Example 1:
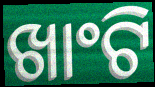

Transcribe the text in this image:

ଖାଂଟି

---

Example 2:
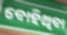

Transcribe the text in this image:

ବୋହିଥିବା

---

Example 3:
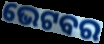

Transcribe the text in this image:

ଭେଟବର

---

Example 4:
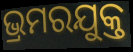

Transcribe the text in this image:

ଭ୍ରମରଯୁକ୍ତ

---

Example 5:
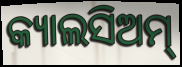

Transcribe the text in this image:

କ୍ୟାଲସିଅମ୍